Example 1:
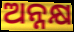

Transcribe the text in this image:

ଅନ୍ନକ୍ଷ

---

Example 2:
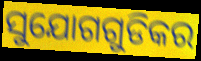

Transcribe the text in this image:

ସୁଯୋଗଗୁଡିକର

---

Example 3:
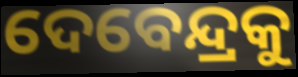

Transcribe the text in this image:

ଦେବେନ୍ଦ୍ରକୁ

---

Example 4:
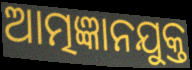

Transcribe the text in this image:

ଆତ୍ମଜ୍ଞାନଯୁକ୍ତ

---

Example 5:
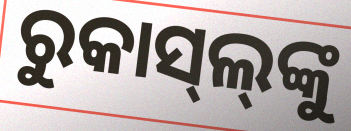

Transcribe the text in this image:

ରୁକାସ୍‍ଲ୍‌ଙ୍କୁ